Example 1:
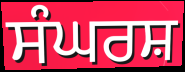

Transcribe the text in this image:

ਸੰਘਰਸ਼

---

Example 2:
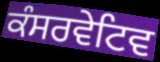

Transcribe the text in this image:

ਕੰਸਰਵੇਟਿਵ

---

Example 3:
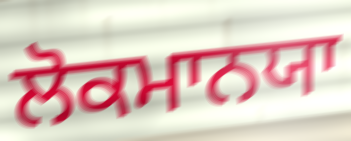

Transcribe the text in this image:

ਲੋਕਮਾਨਯਾ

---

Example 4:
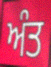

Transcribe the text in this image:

ਅੰਤ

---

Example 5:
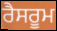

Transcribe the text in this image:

ਰੈਸਰੂਮ